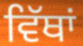
ਵਿੱਥਾਂ